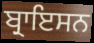
ਬ੍ਰਾਇਸਨ